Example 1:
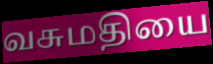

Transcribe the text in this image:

வசுமதியை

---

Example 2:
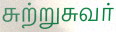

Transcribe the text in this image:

சுற்றுசுவர்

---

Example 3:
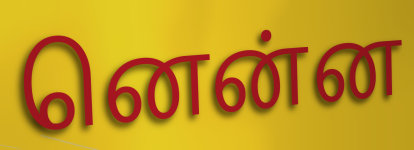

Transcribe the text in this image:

னென்ன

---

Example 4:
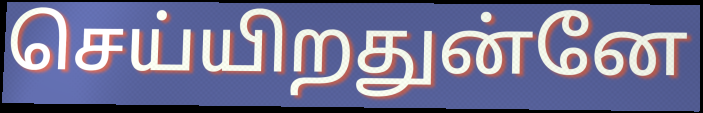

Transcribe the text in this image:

செய்யிறதுன்னே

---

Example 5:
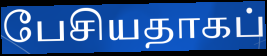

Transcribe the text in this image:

பேசியதாகப்